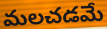
మలచడమే